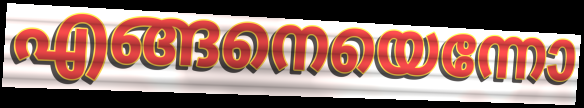
എങ്ങനെയെന്നോ